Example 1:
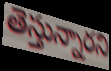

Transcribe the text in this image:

తెస్తున్నారని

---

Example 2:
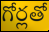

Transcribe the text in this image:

గోర్లతో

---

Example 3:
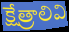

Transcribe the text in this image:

క్షేత్రాలివి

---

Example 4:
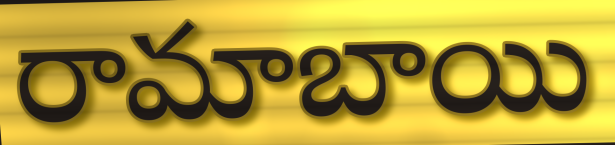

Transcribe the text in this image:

రామాబాయి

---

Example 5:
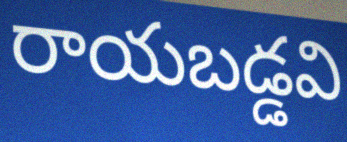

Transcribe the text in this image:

రాయబడ్డవి